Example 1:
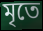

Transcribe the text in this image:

মৃতে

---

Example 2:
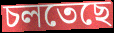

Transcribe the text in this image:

চলতেছে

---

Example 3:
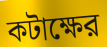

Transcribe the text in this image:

কটাক্ষের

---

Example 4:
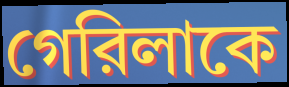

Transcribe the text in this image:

গেরিলাকে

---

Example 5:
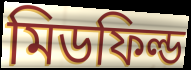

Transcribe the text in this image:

মিডফিল্ড